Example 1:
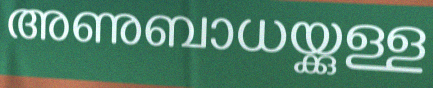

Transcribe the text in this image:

അണുബാധയ്ക്കുള്ള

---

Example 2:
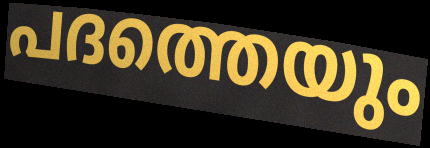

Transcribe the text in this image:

പദത്തെയും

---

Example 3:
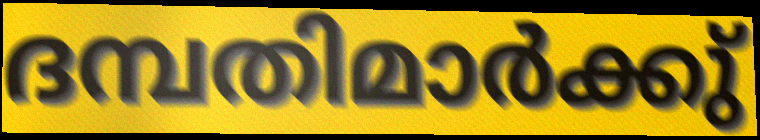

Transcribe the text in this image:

ദമ്പതിമാർക്കു്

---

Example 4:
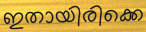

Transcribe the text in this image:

ഇതായിരിക്കെ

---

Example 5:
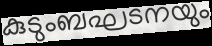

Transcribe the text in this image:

കുടുംബഘടനയും